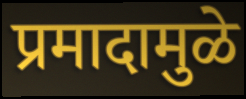
प्रमादामुळे